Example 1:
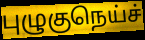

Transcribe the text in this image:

புழுகுநெய்ச்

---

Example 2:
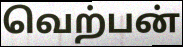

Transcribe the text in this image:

வெற்பன்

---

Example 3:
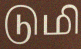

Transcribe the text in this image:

டுமி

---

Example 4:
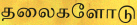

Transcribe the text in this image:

தலைகளோடு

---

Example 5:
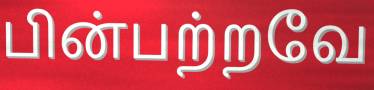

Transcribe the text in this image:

பின்பற்றவே